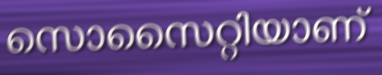
സൊസൈറ്റിയാണ്